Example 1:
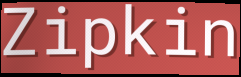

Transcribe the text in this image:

Zipkin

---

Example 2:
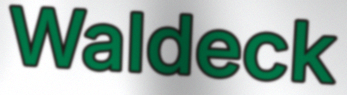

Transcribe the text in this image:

Waldeck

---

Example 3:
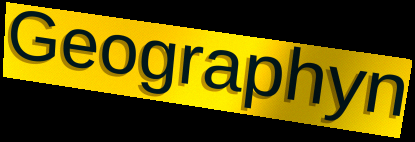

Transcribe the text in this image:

Geographyn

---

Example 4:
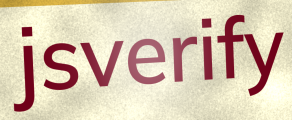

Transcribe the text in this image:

jsverify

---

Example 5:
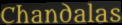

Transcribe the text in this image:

Chandalas